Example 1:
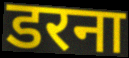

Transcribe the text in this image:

डरना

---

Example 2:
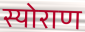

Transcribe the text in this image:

स्योराण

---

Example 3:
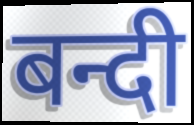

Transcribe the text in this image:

बन्दी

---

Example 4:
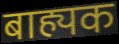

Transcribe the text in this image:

बाह्यक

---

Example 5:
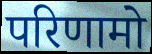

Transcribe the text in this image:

परिणामो